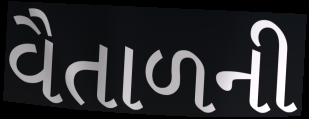
વૈતાળની